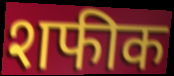
शफीक